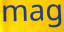
mag